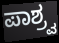
ಪಾಶ್ರ್ವ